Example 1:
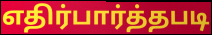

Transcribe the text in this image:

எதிர்பார்த்தபடி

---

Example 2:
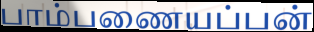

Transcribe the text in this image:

பாம்பணையப்பன்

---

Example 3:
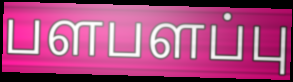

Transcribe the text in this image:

பளபளப்பு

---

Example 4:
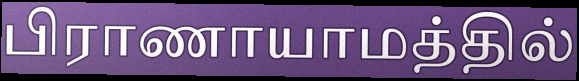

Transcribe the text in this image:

பிராணாயாமத்தில்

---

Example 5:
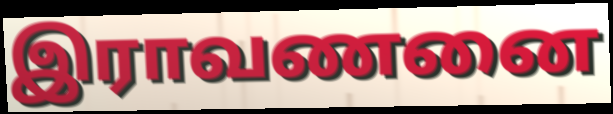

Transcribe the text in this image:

இராவணனை